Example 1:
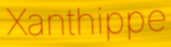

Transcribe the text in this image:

Xanthippe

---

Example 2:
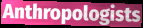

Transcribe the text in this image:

Anthropologists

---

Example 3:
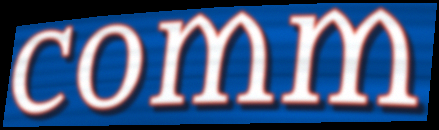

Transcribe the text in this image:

comm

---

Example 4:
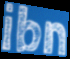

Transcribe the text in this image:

ibn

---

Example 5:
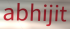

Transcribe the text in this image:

abhijit